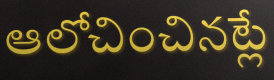
ఆలోచించినట్లే